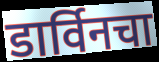
डार्विनचा